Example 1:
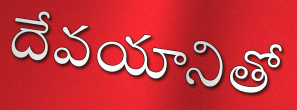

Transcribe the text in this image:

దేవయానితో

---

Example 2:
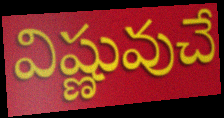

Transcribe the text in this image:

విష్ణువుచే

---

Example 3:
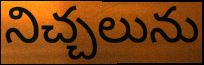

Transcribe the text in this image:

నిచ్చలును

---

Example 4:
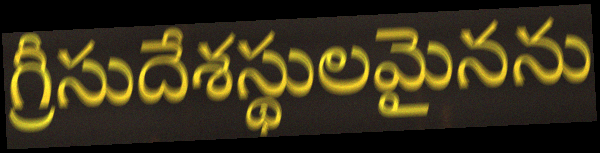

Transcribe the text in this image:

గ్రీసుదేశస్థులమైనను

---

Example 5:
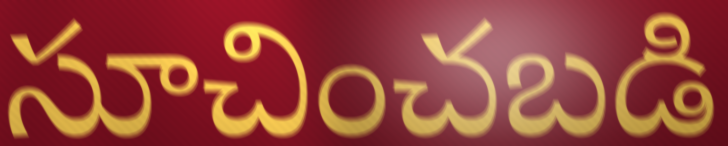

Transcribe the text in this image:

సూచించబడి